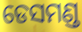
ଡେସମଣ୍ଡ